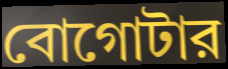
বোগোটার